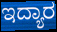
ಇದ್ಯಾರ